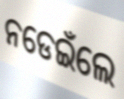
ନଡେଇଁଲେ